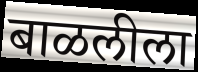
बाळलीला